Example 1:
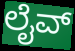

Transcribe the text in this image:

ಲೈವ್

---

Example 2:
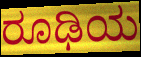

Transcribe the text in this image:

ರೂಢಿಯ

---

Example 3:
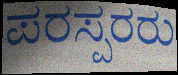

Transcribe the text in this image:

ಪರಸ್ಪರರು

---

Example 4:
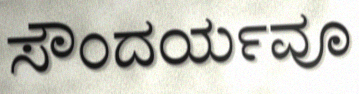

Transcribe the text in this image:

ಸೌಂದರ್ಯವೂ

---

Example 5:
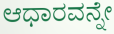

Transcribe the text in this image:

ಆಧಾರವನ್ನೇ